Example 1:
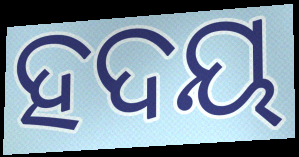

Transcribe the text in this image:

ହଦୟ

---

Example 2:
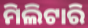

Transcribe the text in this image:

ମିଲିଟାରି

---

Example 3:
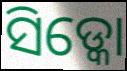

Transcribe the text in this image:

ସିଡ୍କୋ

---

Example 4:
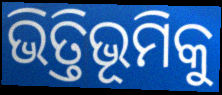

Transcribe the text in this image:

ଭିତ୍ତିଭୂମିକୁ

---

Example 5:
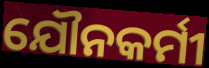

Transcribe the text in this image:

ଯୌନକର୍ମୀ